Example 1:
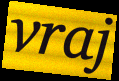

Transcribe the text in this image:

vraj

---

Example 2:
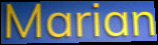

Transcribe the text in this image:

Marian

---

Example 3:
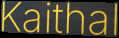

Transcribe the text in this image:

Kaithal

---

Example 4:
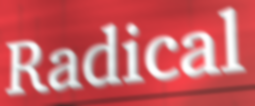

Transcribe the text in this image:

Radical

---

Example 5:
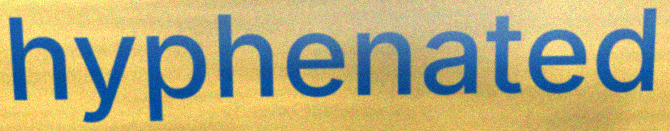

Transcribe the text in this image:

hyphenated